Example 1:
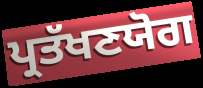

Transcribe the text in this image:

ਪ੍ਰਤੱਖਣਯੋਗ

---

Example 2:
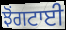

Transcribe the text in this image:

ਝੋਂਗਟਾਈ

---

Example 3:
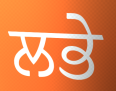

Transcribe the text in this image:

ਲਭੇ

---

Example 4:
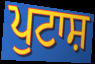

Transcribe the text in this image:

ਪੁਟਾਸ਼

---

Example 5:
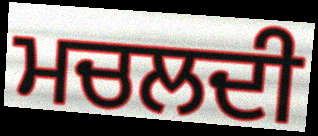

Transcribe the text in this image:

ਮਚਲਦੀ